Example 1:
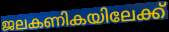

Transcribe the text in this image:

ജലകണികയിലേക്ക്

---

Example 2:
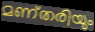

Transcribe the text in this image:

മണ്തരിയും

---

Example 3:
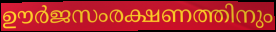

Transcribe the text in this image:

ഊർജസംരക്ഷണത്തിനും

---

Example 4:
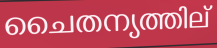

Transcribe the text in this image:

ചൈതന്യത്തില്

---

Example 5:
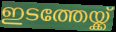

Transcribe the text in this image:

ഇടത്തേയ്ക്ക്